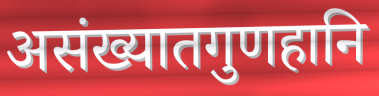
असंख्यातगुणहानि